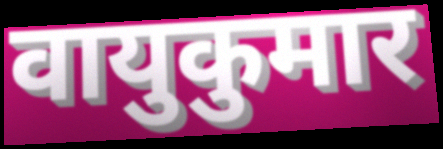
वायुकुमार